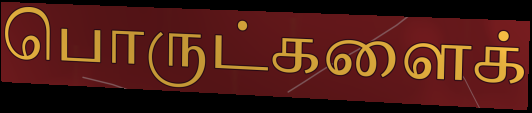
பொருட்களைக்